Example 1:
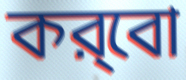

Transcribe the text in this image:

কর্‌বো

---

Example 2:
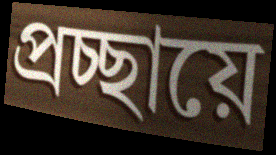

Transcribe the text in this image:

প্রচ্ছায়ে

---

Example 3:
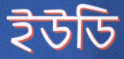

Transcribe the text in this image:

ইউডি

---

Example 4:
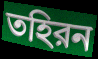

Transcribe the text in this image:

তহিরন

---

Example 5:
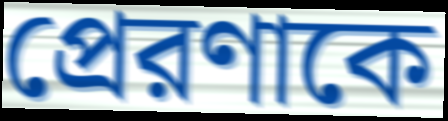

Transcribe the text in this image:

প্রেরণাকে